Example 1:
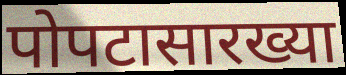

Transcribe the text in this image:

पोपटासारख्या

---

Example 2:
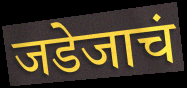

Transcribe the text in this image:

जडेजाचं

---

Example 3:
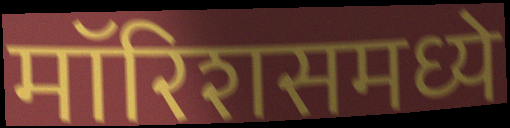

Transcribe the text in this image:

मॉरिशसमध्ये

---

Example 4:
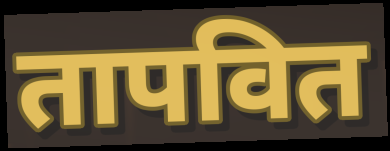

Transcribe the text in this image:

तापवित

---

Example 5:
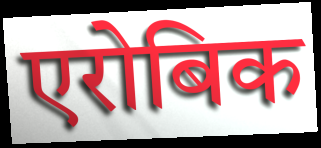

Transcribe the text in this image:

एरोबिक